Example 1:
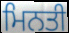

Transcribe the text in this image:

ਮਿਨਤੀ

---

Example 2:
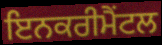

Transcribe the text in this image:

ਇਨਕਰੀਮੈਂਟਲ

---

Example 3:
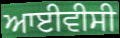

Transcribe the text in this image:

ਆਈਵੀਸੀ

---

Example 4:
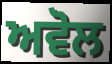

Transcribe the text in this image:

ਅਵੋਲ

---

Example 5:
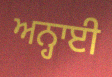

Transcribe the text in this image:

ਅਨ੍ਹਾਈ